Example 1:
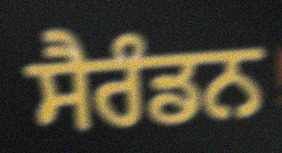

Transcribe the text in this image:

ਸੈਰੰਡਨ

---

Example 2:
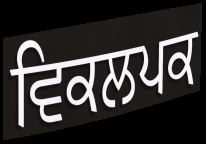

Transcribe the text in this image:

ਵਿਕਲਪਕ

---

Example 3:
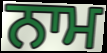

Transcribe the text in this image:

ਨਾਮ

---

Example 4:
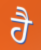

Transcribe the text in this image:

ਹੈ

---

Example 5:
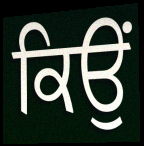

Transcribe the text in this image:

ਕਿਉਂ